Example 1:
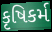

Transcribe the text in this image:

કૃષિકર્મ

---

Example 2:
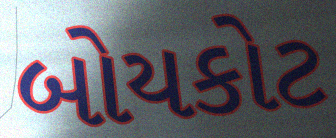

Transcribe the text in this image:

બોયકોટ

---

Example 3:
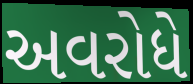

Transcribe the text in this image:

અવરોધે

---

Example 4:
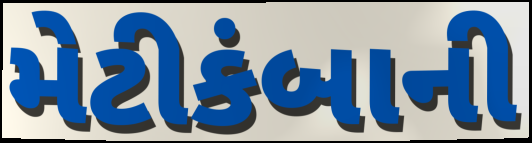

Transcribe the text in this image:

મેટીકંબાની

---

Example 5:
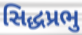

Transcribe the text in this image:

સિદ્ધપ્રભુ